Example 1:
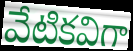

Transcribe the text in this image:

వేటికవిగా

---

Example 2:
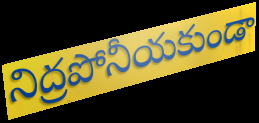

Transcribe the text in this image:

నిద్రపోనీయకుండా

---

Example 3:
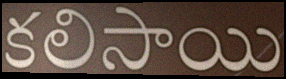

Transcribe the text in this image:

కలిసాయి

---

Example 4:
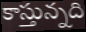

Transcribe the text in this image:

కాస్తున్నది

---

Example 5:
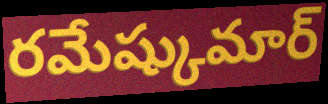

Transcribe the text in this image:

రమేష్కుమార్